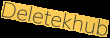
Deletekhub